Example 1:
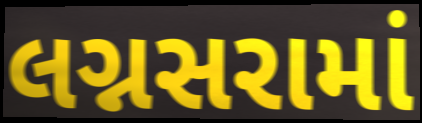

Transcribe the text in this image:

લગ્નસરામાં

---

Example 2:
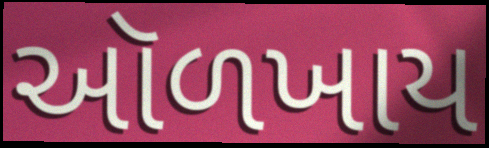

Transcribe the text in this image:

ઑળખાય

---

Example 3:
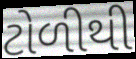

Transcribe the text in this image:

ટોળીથી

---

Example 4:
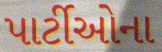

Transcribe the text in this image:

પાર્ટીઓના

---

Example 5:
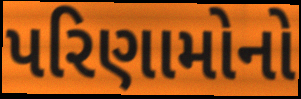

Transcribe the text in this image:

પરિણામોનો